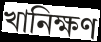
খানিক্ষণ